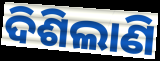
ଦିଶିଲାଣି